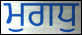
ਮੁਗਧੁ